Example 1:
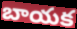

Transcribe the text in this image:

బాయక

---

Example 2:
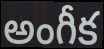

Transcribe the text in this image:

అంగీక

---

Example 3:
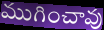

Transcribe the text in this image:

ముగించావు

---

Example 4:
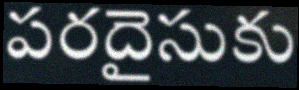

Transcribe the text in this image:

పరదైసుకు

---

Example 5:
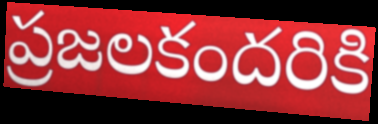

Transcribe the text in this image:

ప్రజలకందరికి